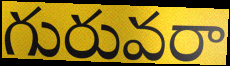
గురువరా